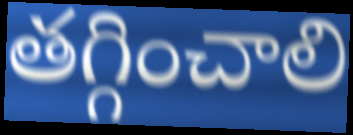
తగ్గించాలి